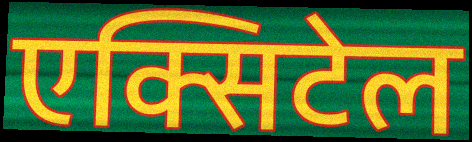
एक्सिटेल